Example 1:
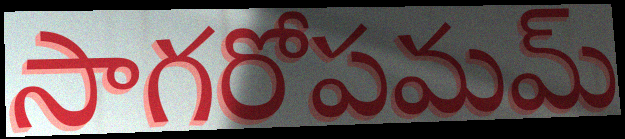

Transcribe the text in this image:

సాగరోపమమ్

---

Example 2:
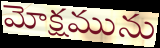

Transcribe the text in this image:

మోక్షమును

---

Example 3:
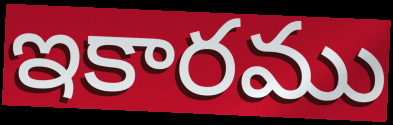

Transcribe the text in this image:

ఇకారము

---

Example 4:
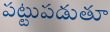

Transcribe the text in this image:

పట్టుపడుతూ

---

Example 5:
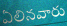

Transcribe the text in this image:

ఏలినవారు